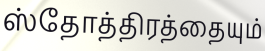
ஸ்தோத்திரத்தையும்